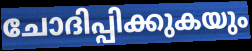
ചോദിപ്പിക്കുകയും